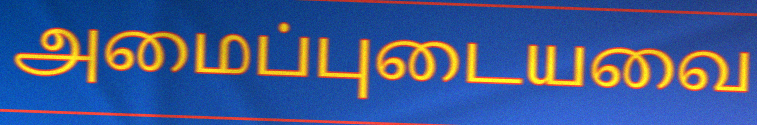
அமைப்புடையவை